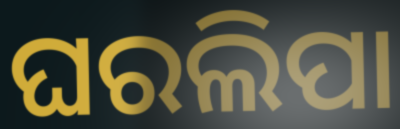
ଘରଲିପା